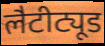
लैटीट्यूड